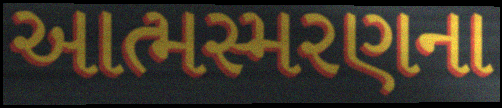
આત્મસ્મરણના